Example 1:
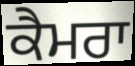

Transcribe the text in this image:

ਕੈਮਰਾ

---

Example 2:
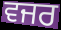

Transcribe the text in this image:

ਵਜਰ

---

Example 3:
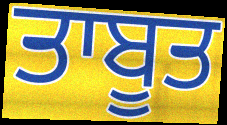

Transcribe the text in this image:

ਤਾਬੂਤ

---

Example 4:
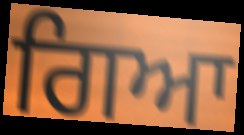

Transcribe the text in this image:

ਗਿਆ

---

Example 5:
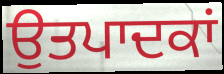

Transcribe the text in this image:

ਉਤਪਾਦਕਾਂ